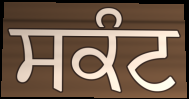
ਸਕੰਟ